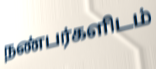
நண்பர்களிடம்